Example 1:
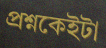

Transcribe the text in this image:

প্ৰশ্নকেইটা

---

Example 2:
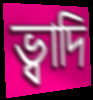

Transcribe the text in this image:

ভ্বাদি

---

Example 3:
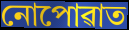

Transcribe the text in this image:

নোপোৱাত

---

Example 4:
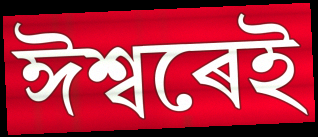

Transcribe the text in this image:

ঈশ্বৰেই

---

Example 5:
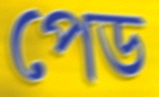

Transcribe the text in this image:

পেড